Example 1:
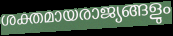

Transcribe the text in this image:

ശക്തമായരാജ്യങ്ങളും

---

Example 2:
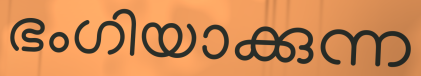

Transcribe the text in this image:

ഭംഗിയാക്കുന്ന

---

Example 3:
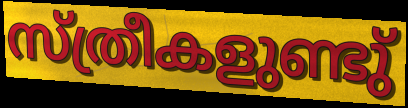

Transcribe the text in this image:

സ്ത്രീകളുണ്ടു്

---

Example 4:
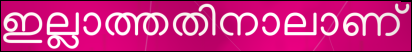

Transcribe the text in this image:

ഇല്ലാത്തതിനാലാണ്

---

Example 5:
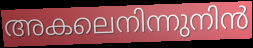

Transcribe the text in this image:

അകലെനിന്നുനിൻ